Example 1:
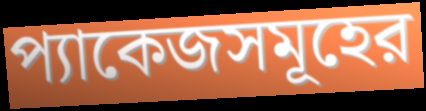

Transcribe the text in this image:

প্যাকেজসমূহের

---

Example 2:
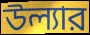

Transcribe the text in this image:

উল্যার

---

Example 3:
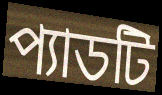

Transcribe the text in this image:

প্যাডটি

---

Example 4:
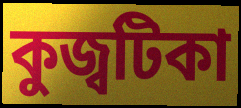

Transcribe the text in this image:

কুজ্বটিকা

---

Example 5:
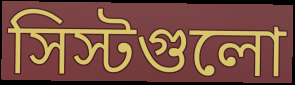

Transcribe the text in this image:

সিস্টগুলো